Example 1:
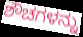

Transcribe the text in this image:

ಶೌಚಗಳನ್ನು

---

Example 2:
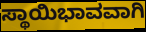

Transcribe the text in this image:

ಸ್ಥಾಯಿಭಾವವಾಗಿ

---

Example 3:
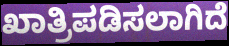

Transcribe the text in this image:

ಖಾತ್ರಿಪಡಿಸಲಾಗಿದೆ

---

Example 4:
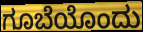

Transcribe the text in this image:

ಗೂಬೆಯೊಂದು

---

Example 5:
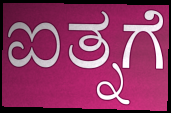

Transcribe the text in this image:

ಐತ್ನಗೆ